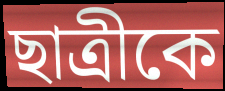
ছাত্রীকে